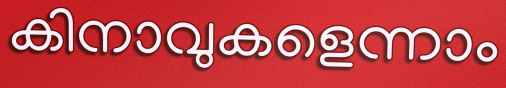
കിനാവുകളെന്നാം